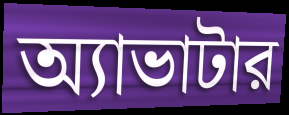
অ্যাভাটার